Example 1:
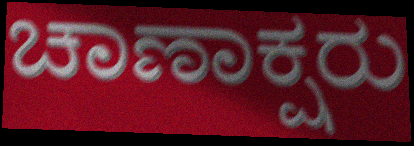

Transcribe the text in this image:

ಚಾಣಾಕ್ಷರು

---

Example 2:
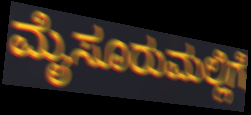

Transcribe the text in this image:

ಮೈಸೂರುಮಲ್ಲಿಗೆ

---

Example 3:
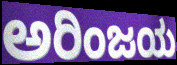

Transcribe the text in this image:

ಅರಿಂಜಯ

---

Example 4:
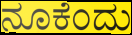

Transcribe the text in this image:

ನೂಕೆಂದು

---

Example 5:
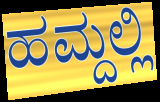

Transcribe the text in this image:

ಹಮ್ದಲ್ಲಿ